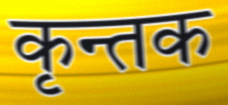
कृन्तक